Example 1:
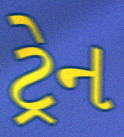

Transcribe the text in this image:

ટ્રેન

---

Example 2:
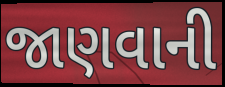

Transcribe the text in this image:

જાણવાની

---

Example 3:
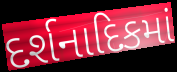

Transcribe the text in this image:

દર્શનાદિકમાં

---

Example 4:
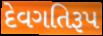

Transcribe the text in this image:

દેવગતિરૂપ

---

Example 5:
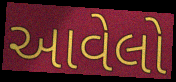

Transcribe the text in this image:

આવેલો